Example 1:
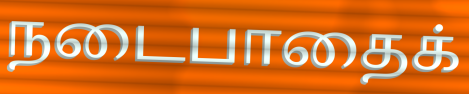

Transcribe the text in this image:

நடைபாதைக்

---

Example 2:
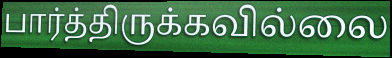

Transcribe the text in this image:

பார்த்திருக்கவில்லை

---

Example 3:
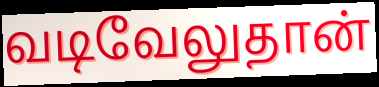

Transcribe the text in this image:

வடிவேலுதான்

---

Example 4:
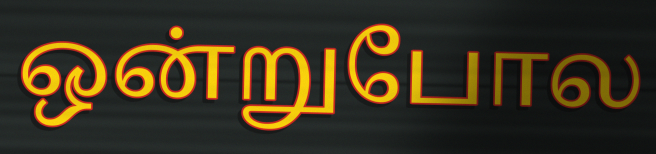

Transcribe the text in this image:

ஒன்றுபோல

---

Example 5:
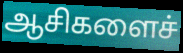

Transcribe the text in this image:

ஆசிகளைச்